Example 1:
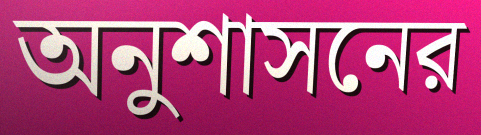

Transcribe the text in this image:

অনুশাসনের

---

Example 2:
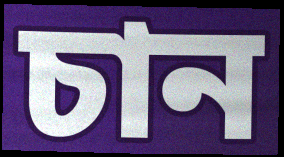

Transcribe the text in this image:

চান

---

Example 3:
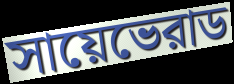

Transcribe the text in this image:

সায়েভেরাড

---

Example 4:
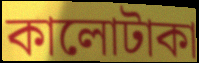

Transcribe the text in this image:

কালোটাকা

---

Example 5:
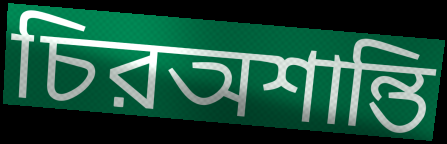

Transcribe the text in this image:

চিরঅশান্তি